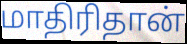
மாதிரிதான்